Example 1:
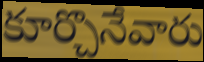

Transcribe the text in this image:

కూర్చొనేవారు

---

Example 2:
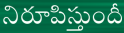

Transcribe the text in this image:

నిరూపిస్తుందీ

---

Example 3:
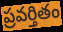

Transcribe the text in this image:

ప్రవర్తితం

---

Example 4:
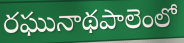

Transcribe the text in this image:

రఘునాథపాలెంలో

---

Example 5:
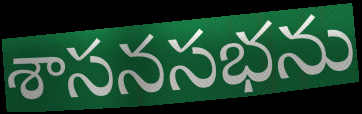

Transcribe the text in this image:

శాసనసభను